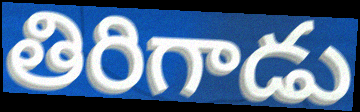
తిరిగాడు